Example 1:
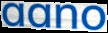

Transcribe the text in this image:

aano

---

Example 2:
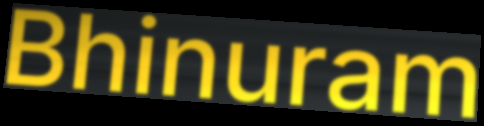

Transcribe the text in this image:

Bhinuram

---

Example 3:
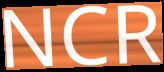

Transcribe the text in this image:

NCR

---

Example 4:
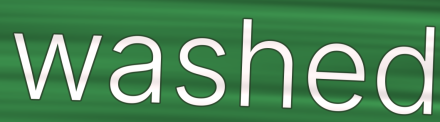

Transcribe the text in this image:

washed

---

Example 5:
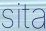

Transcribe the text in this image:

sita